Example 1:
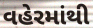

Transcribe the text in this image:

વહેરમાંથી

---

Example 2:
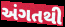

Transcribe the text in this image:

અંગતથી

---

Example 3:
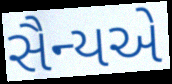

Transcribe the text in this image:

સૈન્યએ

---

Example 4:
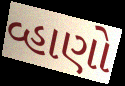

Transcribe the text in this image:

વ્હાણો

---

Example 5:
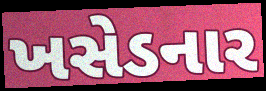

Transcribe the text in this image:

ખસેડનાર